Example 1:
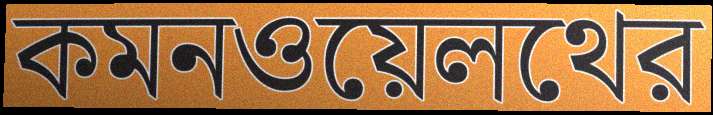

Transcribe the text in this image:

কমনওয়েলথের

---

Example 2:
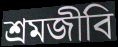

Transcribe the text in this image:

শ্রমজীবি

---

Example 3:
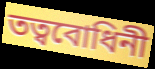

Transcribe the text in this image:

তত্ববোধিনী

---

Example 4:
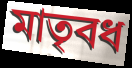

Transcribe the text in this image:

মাতৃবধ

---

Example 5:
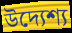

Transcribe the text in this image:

উদ্যেশ্য